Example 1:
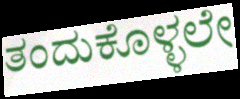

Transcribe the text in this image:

ತಂದುಕೊಳ್ಳಲೇ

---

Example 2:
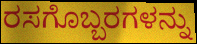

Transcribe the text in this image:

ರಸಗೊಬ್ಬರಗಳನ್ನು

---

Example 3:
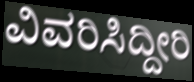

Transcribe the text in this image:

ವಿವರಿಸಿದ್ದೀರಿ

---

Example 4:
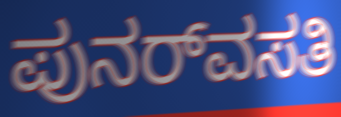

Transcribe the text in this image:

ಪುನರ್‌ವಸತಿ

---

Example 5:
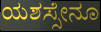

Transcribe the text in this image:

ಯಶಸ್ಸೇನೂ